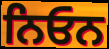
ਨਿਓਨ